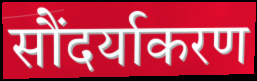
सौंदर्याकरण